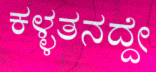
ಕಳ್ಳತನದ್ದೇ